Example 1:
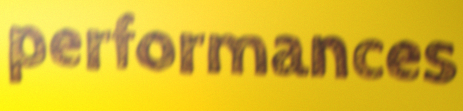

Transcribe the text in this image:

performances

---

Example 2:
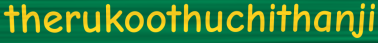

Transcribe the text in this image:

therukoothuchithanji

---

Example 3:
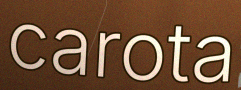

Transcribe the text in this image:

carota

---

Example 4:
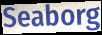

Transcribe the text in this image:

Seaborg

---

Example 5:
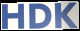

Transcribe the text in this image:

HDK